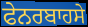
ਫੇਨਰਬਾਹਸੇ